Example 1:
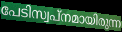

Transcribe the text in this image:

പേടിസ്വപ്നമായിരുന്ന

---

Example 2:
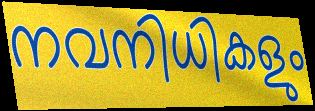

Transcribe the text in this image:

നവനിധികളും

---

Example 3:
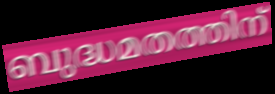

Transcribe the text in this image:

ബുദ്ധമതത്തിന്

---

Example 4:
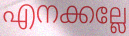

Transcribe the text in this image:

എനക്കല്ലേ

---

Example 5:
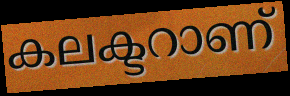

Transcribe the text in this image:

കലക്ടറാണ്